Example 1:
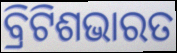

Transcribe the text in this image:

ବ୍ରିଟିଶଭାରତ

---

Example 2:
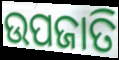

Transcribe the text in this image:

ଉପଜାତି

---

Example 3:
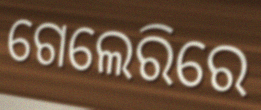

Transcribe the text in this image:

ଗେଲେରିରେ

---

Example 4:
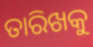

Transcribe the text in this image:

ତାରିଖକୁ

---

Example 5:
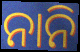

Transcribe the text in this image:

ନାନି